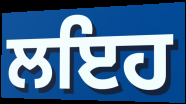
ਲਇਹ